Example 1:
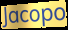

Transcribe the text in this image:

Jacopo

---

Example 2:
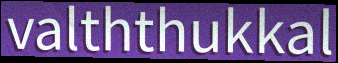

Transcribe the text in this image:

valththukkal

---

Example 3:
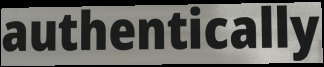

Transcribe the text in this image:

authentically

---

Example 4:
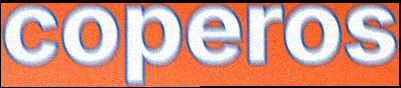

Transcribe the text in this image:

coperos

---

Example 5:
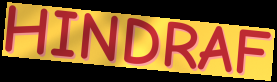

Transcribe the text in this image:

HINDRAF